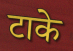
टाके